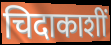
चिदाकाशीं